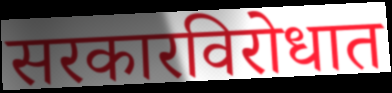
सरकारविरोधात